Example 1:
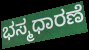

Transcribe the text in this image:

ಭಸ್ಮಧಾರಣೆ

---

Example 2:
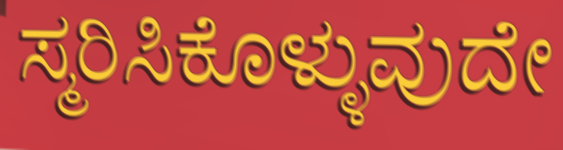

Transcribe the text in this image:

ಸ್ಮರಿಸಿಕೊಳ್ಳುವುದೇ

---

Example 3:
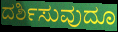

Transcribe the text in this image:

ದರ್ಶಿಸುವುದೂ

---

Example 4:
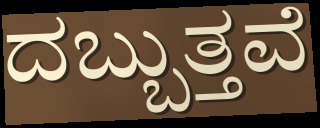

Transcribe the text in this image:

ದಬ್ಬುತ್ತವೆ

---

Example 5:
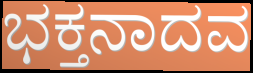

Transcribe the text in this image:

ಭಕ್ತನಾದವ